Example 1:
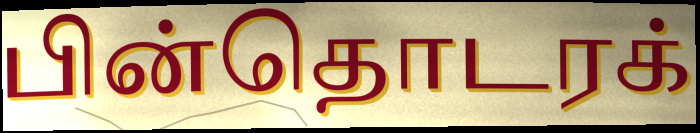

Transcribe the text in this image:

பின்தொடரக்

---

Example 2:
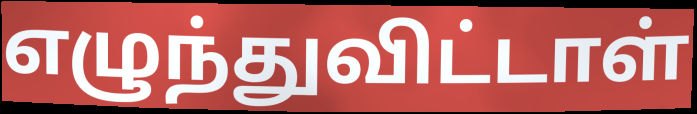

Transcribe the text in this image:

எழுந்துவிட்டாள்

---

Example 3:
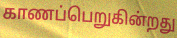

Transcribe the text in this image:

காணப்பெறுகின்றது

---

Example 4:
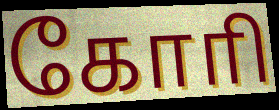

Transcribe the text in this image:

கோரி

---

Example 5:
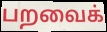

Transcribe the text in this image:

பறவைக்